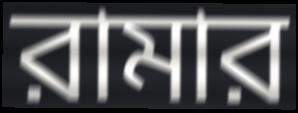
রামার